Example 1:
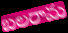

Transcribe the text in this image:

బలరామ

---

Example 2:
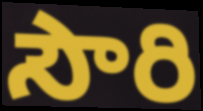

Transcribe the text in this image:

సౌరి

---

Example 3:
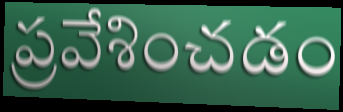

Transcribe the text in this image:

ప్రవేశించడం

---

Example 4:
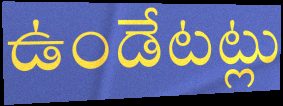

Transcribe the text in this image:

ఉండేటట్లు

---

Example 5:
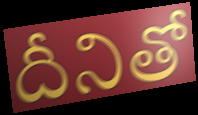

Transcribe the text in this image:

దీనితో